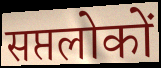
सप्तलोकों